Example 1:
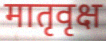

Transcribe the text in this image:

मातृवृक्ष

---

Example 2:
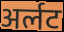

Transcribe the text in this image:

अर्लट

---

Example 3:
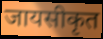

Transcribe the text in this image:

जायसीकृत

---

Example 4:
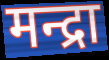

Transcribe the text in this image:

मन्द्रा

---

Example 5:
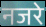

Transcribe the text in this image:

नजरे